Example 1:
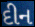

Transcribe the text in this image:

દીન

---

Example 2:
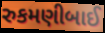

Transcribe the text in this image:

રુકમણીબાઈ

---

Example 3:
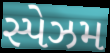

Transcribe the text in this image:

સ્પેઝમ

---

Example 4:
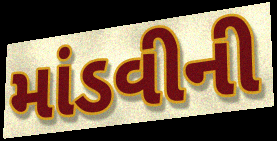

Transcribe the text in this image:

માંડવીની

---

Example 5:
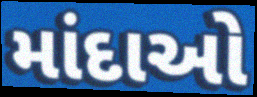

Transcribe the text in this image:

માંદાઓ